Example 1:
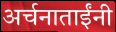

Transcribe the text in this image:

अर्चनाताईंनी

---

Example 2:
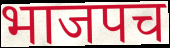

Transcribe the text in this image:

भाजपच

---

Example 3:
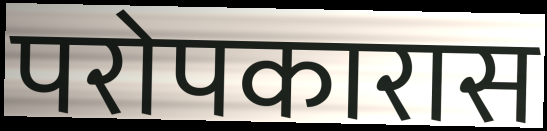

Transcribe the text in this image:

परोपकारास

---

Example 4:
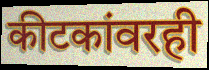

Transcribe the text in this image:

कीटकांवरही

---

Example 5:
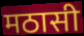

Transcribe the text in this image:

मठासी